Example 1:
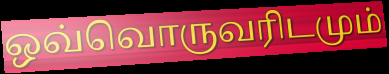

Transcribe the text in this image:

ஒவ்வொருவரிடமும்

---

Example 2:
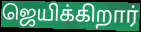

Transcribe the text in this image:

ஜெயிக்கிறார்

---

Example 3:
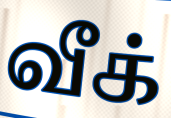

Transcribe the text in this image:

வீக்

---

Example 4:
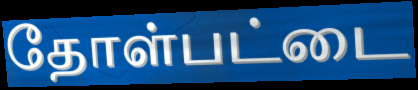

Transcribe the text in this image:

தோள்பட்டை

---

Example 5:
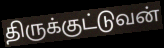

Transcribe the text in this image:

திருக்குட்டுவன்